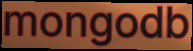
mongodb